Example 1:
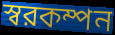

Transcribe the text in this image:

স্বরকম্পন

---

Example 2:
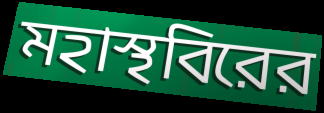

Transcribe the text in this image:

মহাস্থবিরের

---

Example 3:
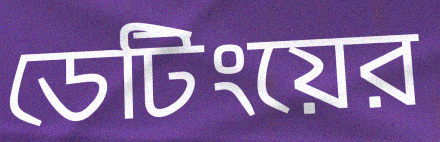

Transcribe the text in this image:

ডেটিংয়ের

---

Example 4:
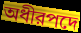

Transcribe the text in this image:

অধীরপদে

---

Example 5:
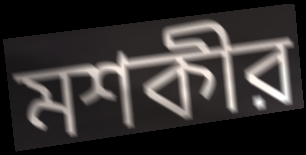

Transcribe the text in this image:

মশকীর